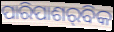
ପାରିପାଶର୍‌ବିକ